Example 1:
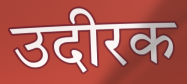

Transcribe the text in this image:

उदीरक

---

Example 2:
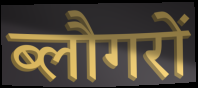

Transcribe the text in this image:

ब्लौगरों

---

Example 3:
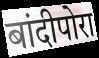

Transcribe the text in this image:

बांदीपोरा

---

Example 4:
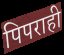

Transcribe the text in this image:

पिपराही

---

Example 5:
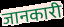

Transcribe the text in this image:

जानकारी